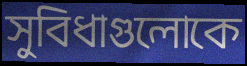
সুবিধাগুলোকে